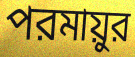
পরমায়ুর